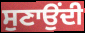
ਸੁਣਾਉਂਦੀ